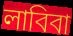
লাবিবা